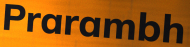
Prarambh